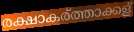
രക്ഷാകര്ത്താക്കള്